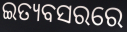
ଇତ୍ୟବସରରେ